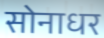
सोनाधर